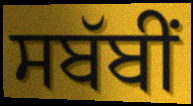
ਸਬੱਬੀਂ